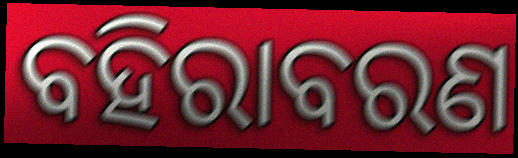
ବହିରାବରଣ